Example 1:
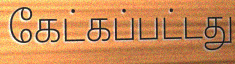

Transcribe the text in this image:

கேட்கப்பட்டது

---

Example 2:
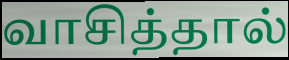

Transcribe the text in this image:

வாசித்தால்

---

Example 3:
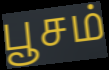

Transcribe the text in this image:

பூசம்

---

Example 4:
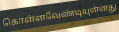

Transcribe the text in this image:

கொள்ளவேண்டியுள்ளது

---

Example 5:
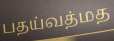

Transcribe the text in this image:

பதய்வத்மத